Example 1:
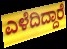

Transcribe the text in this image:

ಎಳೆದಿದ್ದಾರೆ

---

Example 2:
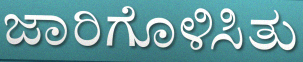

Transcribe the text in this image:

ಜಾರಿಗೊಳಿಸಿತು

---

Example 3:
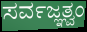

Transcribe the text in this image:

ಸರ್ವಜ್ಞತ್ವಂ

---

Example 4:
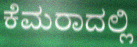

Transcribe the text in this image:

ಕೆಮರಾದಲ್ಲಿ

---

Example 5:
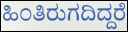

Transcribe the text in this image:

ಹಿಂತಿರುಗದಿದ್ದರೆ